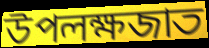
উপলক্ষজাত